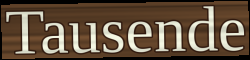
Tausende